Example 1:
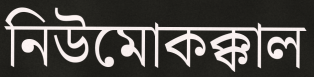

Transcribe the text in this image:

নিউমোকক্কাল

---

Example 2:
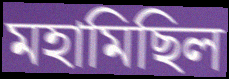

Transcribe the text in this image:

মহামিছিল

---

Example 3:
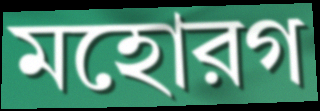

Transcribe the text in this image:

মহোরগ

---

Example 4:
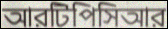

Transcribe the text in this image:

আরটিপিসিআর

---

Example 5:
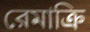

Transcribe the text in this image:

রেমাক্রি